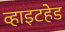
व्हाइटहेड